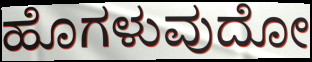
ಹೊಗಳುವುದೋ